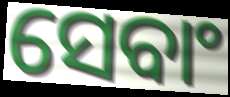
ସେବାଂ